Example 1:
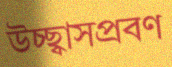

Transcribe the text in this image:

উচ্ছ্বাসপ্রবণ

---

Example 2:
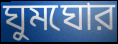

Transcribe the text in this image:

ঘুমঘোর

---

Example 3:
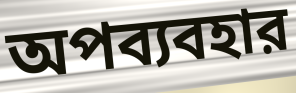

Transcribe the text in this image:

অপব্যবহার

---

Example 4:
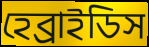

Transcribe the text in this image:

হেব্রাইডিস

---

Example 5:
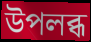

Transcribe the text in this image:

উপলব্ধ